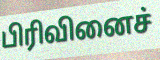
பிரிவினைச்